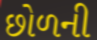
છોળની